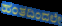
ಹಂತದಿಂದಲೇ